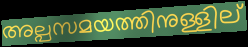
അല്പസമയത്തിനുള്ളില്